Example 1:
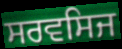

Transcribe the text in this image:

ਸਰਵਸਿਜ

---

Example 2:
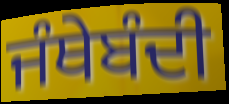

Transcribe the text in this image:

ਜੰਥੇਬੰਦੀ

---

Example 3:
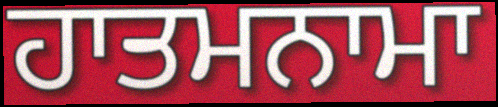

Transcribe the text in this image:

ਹਾਤਮਨਾਮਾ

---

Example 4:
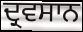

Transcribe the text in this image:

ਦ੍ਰਵਸਾਨ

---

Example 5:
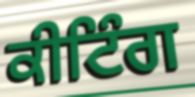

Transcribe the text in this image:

ਕੀਟਿੰਗ